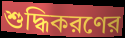
শুদ্ধিকরণের